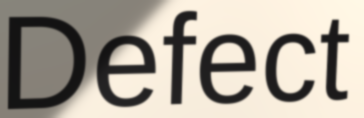
Defect